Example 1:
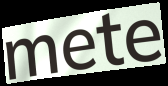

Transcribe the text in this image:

mete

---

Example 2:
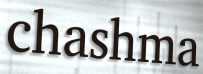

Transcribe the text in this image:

chashma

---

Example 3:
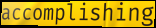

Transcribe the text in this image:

accomplishing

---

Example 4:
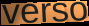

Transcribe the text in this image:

verso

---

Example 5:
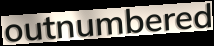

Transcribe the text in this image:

outnumbered